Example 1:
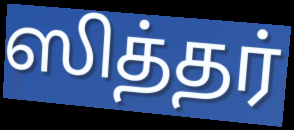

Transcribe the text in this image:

ஸித்தர்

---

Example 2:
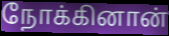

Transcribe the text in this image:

நோக்கினான்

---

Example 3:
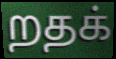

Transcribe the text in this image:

றதக்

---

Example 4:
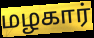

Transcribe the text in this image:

மழகார்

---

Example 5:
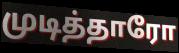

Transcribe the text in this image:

முடித்தாரோ